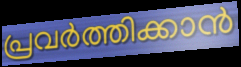
പ്രവർത്തിക്കാൻ